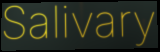
Salivary